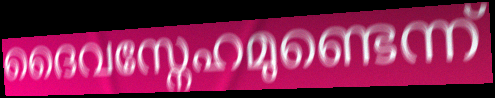
ദൈവസ്നേഹമുണ്ടെന്ന്